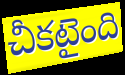
చీకటైంది